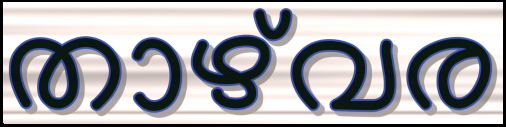
താഴ്‌വര